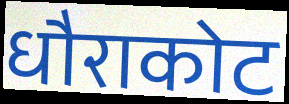
धौराकोट